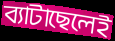
ব্যাটাছেলেই